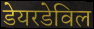
डेयरडेविल